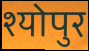
श्योपुर